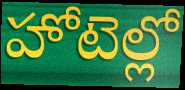
హోటెల్లో